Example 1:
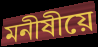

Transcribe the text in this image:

মনীষীয়ে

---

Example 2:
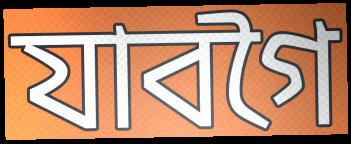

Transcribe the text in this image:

যাবগৈ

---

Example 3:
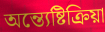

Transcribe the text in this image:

অন্ত্যেষ্টিক্ৰিয়া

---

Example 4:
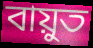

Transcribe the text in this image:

বায়ুত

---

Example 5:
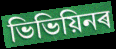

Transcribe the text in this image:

ভিভিয়িনৰ